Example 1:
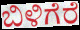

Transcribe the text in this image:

ಬಿಳಿಗೆರೆ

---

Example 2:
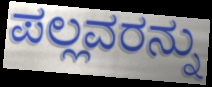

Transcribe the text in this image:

ಪಲ್ಲವರನ್ನು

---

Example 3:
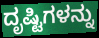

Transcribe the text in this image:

ದೃಷ್ಟಿಗಳನ್ನು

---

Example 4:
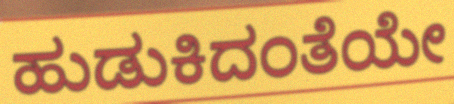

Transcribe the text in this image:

ಹುಡುಕಿದಂತೆಯೇ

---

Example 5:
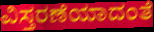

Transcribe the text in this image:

ವಿಸ್ತರಣೆಯಾದಂತೆ